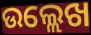
ଉଲ୍ଲେଖ